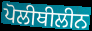
ਪੋਲੀਥੀਲੀਨ